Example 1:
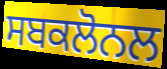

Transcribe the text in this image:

ਸਬਕਲੋਨਲ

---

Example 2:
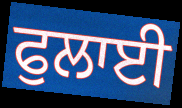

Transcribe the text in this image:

ਫੁਲਾਈ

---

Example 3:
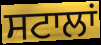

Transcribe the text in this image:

ਸਟਾਲਾਂ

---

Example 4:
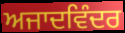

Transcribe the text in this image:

ਅਜਾਦਵਿੰਦਰ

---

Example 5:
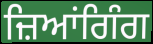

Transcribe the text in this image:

ਜ਼ਿਆਂਗਿੰਗ